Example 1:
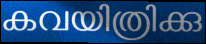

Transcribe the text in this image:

കവയിത്രിക്കു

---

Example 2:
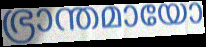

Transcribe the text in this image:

ഭ്രാന്തമായോ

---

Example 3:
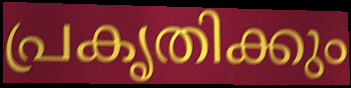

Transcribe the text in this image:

പ്രകൃതിക്കും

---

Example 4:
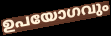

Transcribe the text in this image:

ഉപയോഗവും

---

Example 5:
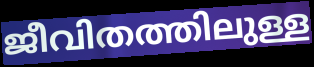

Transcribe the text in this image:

ജീവിതത്തിലുള്ള